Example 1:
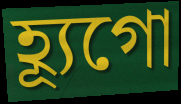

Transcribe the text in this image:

হ্যূগো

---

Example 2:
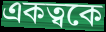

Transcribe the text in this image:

একত্বকে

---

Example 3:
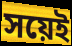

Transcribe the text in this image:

সয়েই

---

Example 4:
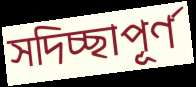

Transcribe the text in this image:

সদিচ্ছাপূর্ণ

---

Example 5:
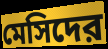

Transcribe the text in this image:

মেসিদের